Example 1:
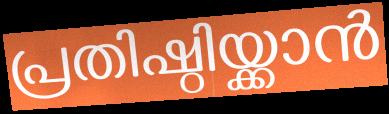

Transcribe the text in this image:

പ്രതിഷ്ഠിയ്ക്കാൻ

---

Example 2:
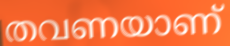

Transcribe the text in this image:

തവണയാണ്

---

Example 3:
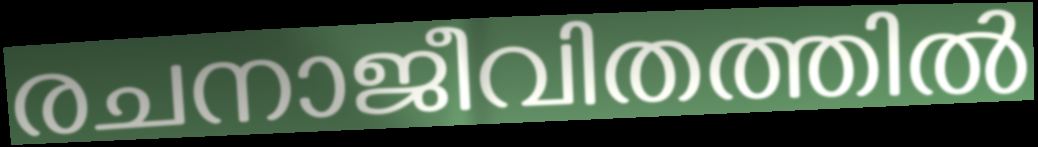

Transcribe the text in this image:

രചനാജീവിതത്തിൽ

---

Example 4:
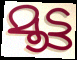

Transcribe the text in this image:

മൂട്ട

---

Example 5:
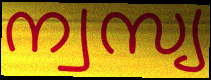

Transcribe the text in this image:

ന്വസ്യ